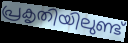
പ്രകൃതിയിലുണ്ട്